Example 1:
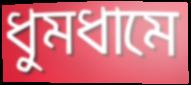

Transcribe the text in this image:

ধুমধামে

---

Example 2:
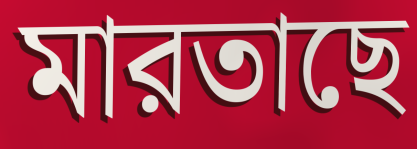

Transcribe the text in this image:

মারতাছে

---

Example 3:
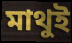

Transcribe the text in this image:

মাথুই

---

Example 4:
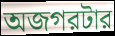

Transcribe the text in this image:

অজগরটার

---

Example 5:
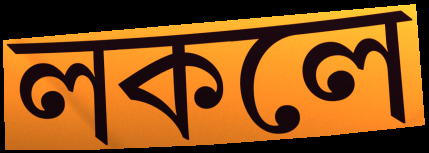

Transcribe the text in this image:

লকলে